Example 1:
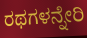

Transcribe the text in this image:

ರಥಗಳನ್ನೇರಿ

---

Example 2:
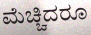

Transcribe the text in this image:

ಮೆಚ್ಚಿದರೂ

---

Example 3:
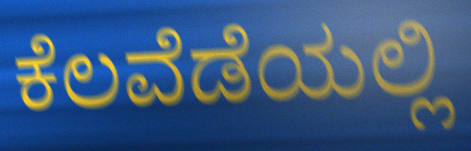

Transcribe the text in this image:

ಕೆಲವೆಡೆಯಲ್ಲಿ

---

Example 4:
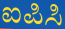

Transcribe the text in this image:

ಐಪಿಸಿ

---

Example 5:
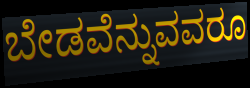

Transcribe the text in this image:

ಬೇಡವೆನ್ನುವವರೂ